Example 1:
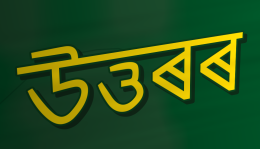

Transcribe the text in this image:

উত্তৰৰ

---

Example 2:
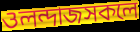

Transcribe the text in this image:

ওলন্দাজসকলে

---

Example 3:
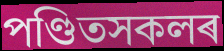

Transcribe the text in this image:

পণ্ডিতসকলৰ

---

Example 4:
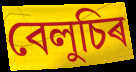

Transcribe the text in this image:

বেলুচিৰ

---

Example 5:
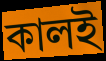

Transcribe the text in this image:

কালই